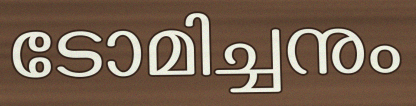
ടോമിച്ചനും